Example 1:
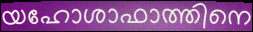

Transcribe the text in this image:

യഹോശാഫാത്തിനെ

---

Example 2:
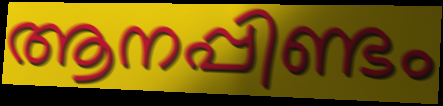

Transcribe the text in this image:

ആനപ്പിണ്ടം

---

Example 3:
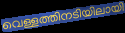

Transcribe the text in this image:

വെള്ളത്തിനടിയിലായി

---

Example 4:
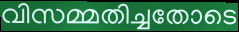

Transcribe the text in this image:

വിസമ്മതിച്ചതോടെ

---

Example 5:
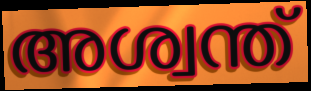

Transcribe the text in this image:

അശ്വന്ത്